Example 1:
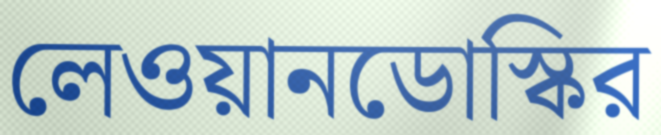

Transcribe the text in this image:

লেওয়ানডোস্কির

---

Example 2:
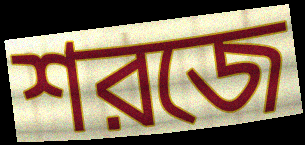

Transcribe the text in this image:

শরজে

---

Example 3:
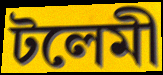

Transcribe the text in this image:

টলেমী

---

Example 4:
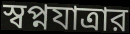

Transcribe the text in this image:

স্বপ্নযাত্রার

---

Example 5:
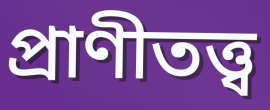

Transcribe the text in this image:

প্রাণীতত্ত্ব